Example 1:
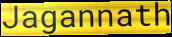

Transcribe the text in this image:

Jagannath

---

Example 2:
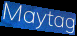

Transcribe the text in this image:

Maytag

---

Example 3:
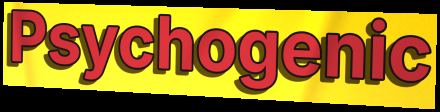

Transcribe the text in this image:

Psychogenic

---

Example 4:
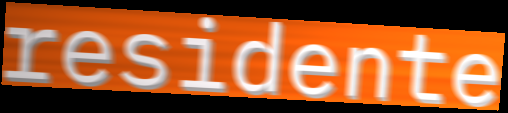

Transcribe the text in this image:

residente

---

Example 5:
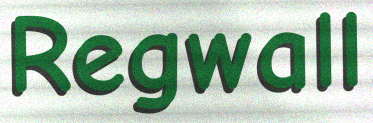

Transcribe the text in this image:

Regwall